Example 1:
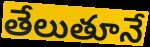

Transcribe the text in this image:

తేలుతూనే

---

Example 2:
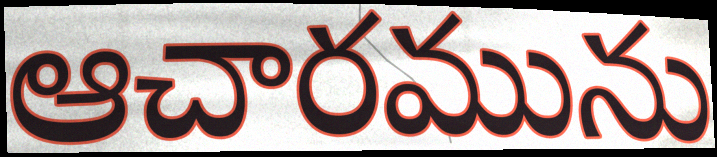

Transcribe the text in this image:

ఆచారమును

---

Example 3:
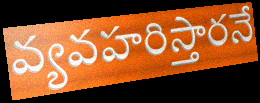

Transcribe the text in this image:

వ్యవహరిస్తారనే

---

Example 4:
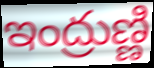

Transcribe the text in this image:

ఇంద్రుణ్ణి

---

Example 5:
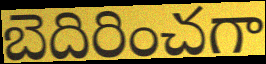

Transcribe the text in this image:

బెదిరించగా